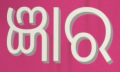
ଜ୍ଞାର